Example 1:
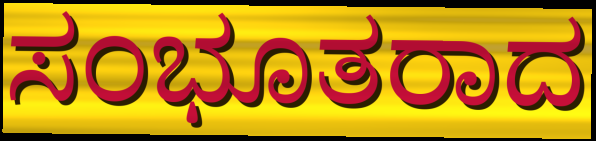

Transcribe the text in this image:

ಸಂಭೂತರಾದ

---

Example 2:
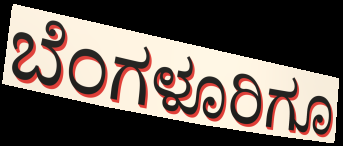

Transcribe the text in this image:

ಬೆಂಗಳೂರಿಗೂ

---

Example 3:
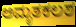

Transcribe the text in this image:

ಅಮೃತಕಲಶ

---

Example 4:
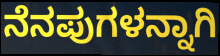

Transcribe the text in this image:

ನೆನಪುಗಳನ್ನಾಗಿ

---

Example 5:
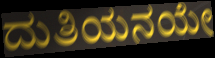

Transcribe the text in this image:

ದುತಿಯನಯೇ